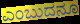
ಎಂಬುದನೂ